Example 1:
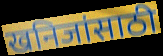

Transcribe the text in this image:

खनिजांसाठी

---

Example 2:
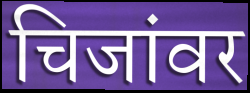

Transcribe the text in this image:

चिजांवर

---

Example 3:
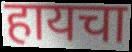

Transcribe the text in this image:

हायचा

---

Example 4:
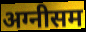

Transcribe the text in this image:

अग्नीसम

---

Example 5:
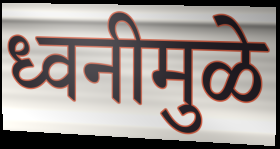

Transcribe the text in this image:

ध्वनीमुळे